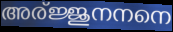
അര്ജ്ജുനനനെ